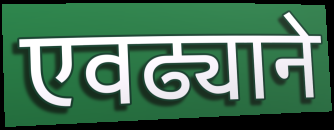
एवढ्याने